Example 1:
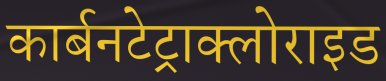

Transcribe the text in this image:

कार्बनटेट्राक्लोराइड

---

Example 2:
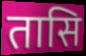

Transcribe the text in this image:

तासि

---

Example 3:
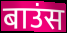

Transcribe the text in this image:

बाउंस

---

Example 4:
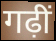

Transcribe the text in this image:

गढ़ीं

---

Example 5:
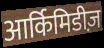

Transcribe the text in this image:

आर्किमिडीज़